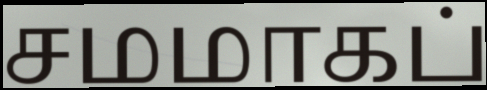
சமமாகப்